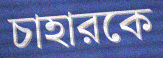
চাহারকে